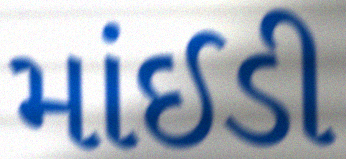
માંઈડી